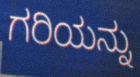
ಗರಿಯನ್ನು